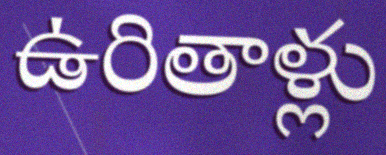
ఉరితాళ్లు